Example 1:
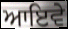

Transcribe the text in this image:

ਆਇਵੇ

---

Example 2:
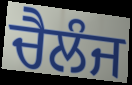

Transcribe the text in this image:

ਚੈਲੰਜ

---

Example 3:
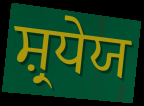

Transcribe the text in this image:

ਸ਼੍ਰਧੇਯ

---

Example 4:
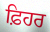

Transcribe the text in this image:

ਫ਼ਿਹਰ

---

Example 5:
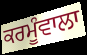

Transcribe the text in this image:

ਕਰਮੂੰਵਾਲਾ